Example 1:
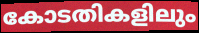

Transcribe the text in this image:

കോടതികളിലും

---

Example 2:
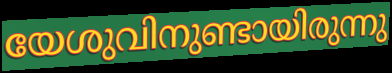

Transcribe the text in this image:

യേശുവിനുണ്ടായിരുന്നു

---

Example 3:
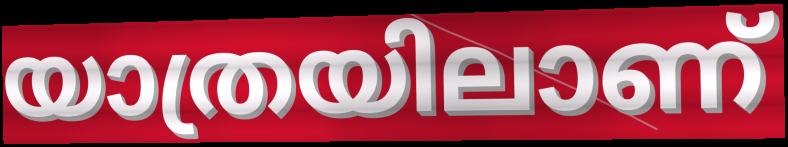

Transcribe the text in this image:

യാത്രയിലാണ്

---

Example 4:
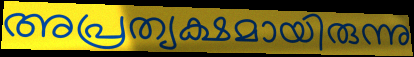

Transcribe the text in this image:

അപ്രത്യക്ഷമായിരുന്നു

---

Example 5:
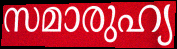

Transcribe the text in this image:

സമാരുഹ്യ